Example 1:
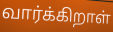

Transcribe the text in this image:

வார்க்கிறாள்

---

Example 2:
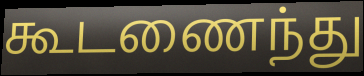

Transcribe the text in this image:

கூடணைந்து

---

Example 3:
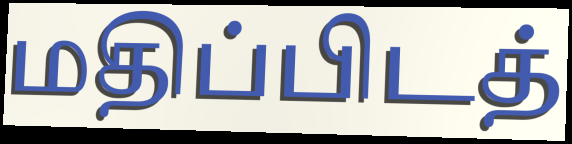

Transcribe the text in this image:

மதிப்பிடத்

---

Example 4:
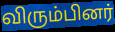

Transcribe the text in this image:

விரும்பினர்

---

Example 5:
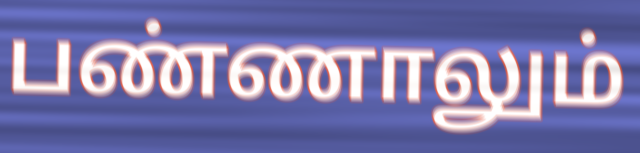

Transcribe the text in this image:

பண்ணாலும்